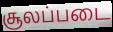
சூலப்படை